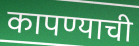
कापण्याची